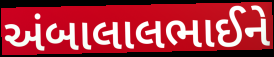
અંબાલાલભાઈને